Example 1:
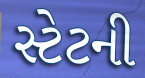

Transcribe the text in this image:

સ્ટેટની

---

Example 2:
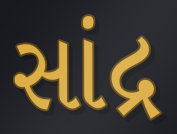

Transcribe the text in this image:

સાંદ્ર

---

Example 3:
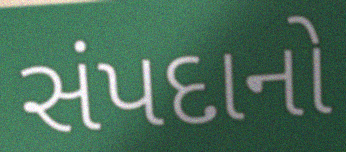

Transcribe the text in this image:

સંપદાનો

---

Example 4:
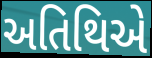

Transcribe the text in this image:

અતિથિએ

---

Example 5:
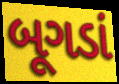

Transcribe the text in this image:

બૂગડાં